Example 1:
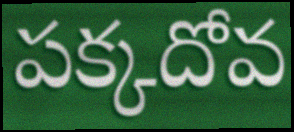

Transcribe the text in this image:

పక్కదోవ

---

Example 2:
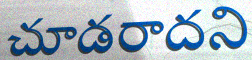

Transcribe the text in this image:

చూడరాదని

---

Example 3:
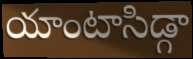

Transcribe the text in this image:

యాంటాసిడ్గా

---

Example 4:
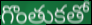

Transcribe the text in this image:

గొంతుకతో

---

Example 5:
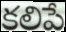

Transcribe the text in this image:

కలిపే